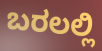
ಬರಲಲ್ಲಿ